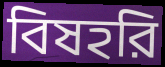
বিষহরি